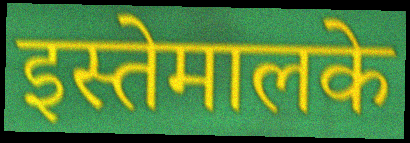
इस्तेमालके